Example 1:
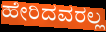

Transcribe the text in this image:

ಹೇರಿದವರಲ್ಲ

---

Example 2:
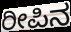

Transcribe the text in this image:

ರೀಪಿನ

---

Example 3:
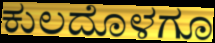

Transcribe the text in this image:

ಕುಲದೊಳಗೂ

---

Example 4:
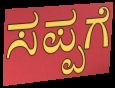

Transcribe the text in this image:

ಸಪ್ಪಗೆ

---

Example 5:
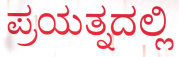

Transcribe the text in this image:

ಪ್ರಯತ್ನದಲ್ಲಿ